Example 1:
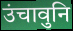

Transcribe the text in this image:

उंचावुनि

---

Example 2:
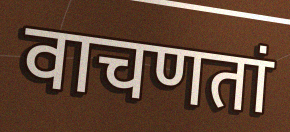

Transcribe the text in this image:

वाचणतां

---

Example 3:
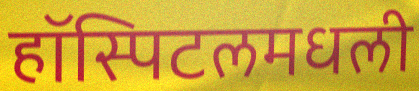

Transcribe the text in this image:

हॉस्पिटलमधली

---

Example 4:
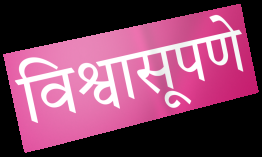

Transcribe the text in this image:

विश्वासूपणे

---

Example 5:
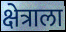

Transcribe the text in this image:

क्षेत्राला